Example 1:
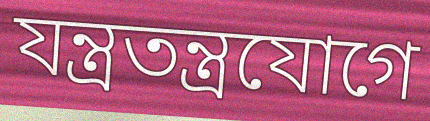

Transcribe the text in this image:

যন্ত্রতন্ত্রযোগে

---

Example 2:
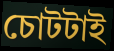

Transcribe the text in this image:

চোটটাই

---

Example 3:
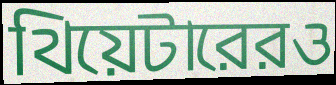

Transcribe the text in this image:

থিয়েটারেরও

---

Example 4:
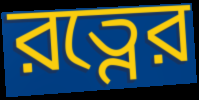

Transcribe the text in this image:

রত্নের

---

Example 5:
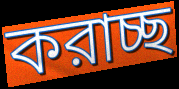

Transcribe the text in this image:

করাচ্ছ